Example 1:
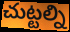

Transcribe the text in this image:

చుట్టల్ని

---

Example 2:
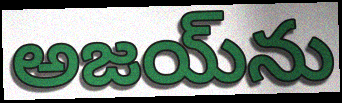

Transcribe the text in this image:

అజయ్‌ను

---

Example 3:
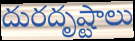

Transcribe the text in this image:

దురదృష్టాలు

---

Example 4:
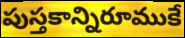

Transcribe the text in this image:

పుస్తకాన్నిరూముకే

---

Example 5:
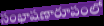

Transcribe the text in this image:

సంభాషణారూపంలో